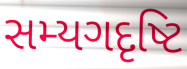
સમ્યગદૃષ્ટિ